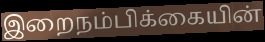
இறைநம்பிக்கையின்